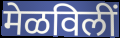
मेळविलीं